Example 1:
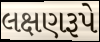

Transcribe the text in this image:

લક્ષણરૂપે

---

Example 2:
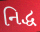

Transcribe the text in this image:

નિદ્ધ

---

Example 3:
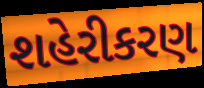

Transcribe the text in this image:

શહેરીકરણ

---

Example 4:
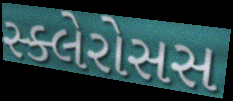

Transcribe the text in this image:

સ્ક્લેરોસસ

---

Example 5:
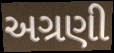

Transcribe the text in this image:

અગ્રણી